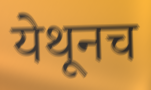
येथूनच